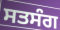
ਸਤਸੰਗ